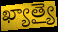
ఖ్యాత్యై